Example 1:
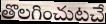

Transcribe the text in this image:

తొలగించుటచే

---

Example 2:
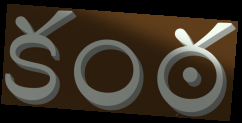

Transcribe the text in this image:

కంఠ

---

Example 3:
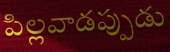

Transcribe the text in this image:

పిల్లవాడప్పుడు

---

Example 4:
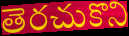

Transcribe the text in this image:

తెరచుకొని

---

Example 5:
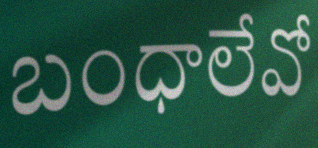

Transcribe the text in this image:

బంధాలేవో